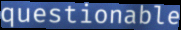
questionable